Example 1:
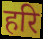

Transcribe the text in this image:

हरि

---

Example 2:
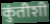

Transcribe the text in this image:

कुंतीशी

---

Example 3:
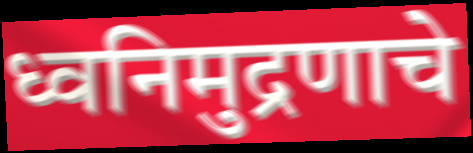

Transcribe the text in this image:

ध्वनिमुद्रणाचे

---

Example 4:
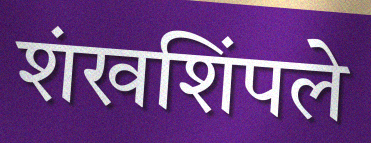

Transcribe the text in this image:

शंखशिंपले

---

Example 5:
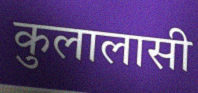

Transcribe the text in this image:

कुलालासी